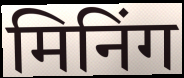
मिनिंग